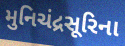
મુનિચંદ્રસૂરિના